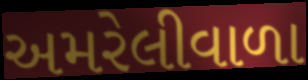
અમરેલીવાળા